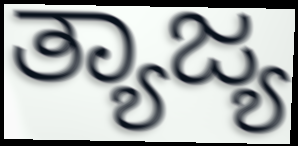
ತ್ಯಾಜ್ಯ